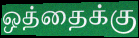
ஒத்தைக்கு